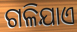
ଗଳିଯାଏ